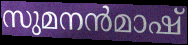
സുമനൻമാഷ്